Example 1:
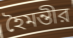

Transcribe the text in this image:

হৈমন্তীর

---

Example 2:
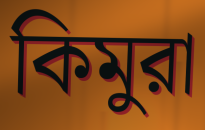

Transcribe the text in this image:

কিমুরা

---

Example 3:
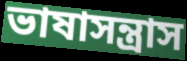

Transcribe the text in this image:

ভাষাসন্ত্রাস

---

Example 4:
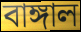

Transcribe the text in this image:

বাঙ্গাল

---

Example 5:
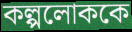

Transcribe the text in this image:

কল্পলোককে